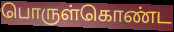
பொருள்கொண்ட